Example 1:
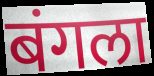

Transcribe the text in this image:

बंगला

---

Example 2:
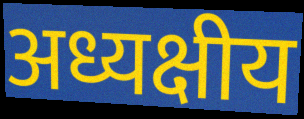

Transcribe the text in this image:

अध्यक्षीय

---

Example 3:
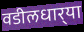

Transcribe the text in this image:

वडीलधार्‍या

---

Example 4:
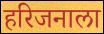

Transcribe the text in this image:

हरिजनाला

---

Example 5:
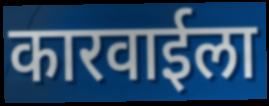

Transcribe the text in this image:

कारवाईला